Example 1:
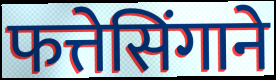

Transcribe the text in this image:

फत्तेसिंगाने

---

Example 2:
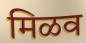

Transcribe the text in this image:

मिळव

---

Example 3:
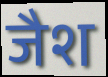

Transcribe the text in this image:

जैश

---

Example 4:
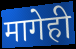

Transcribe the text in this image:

मागेही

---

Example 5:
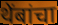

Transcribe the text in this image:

थेंबांचा